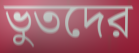
ভুতদের